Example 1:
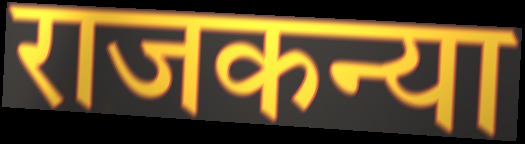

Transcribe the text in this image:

राजकन्या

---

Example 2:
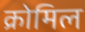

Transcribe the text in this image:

क्रोमिल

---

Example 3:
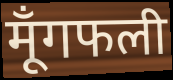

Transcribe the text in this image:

मूँगफली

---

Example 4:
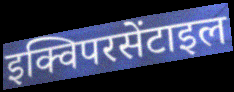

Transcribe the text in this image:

इक्विपरसेंटाइल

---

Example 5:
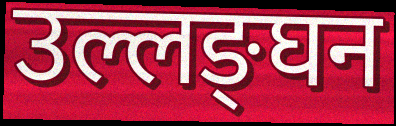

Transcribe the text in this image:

उल्लङ्घन